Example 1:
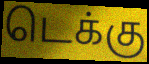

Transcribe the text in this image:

டெக்கு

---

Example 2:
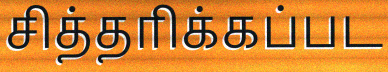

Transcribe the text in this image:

சித்தரிக்கப்பட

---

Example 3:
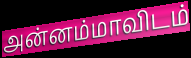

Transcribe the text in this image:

அன்னம்மாவிடம்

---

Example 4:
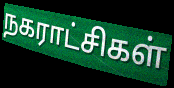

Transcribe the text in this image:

நகராட்சிகள்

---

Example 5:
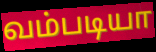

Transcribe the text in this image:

வம்படியா